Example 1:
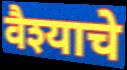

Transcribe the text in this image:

वैश्याचे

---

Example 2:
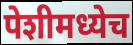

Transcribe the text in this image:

पेशीमध्येच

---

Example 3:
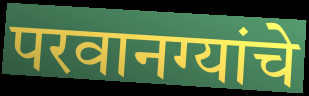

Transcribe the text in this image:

परवानग्यांचे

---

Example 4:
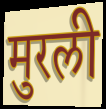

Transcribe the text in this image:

मुरली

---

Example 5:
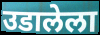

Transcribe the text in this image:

उडालेला